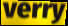
verry